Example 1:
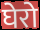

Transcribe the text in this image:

घेरो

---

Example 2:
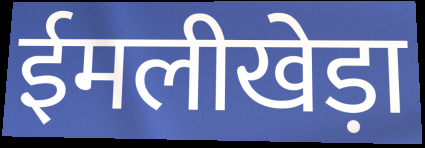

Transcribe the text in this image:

ईमलीखेड़ा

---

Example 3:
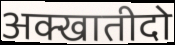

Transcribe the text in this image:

अक्खातीदो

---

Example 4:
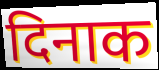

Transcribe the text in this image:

दिनाक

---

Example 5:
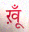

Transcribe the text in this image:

ख़ूँ